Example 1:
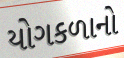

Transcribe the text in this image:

યોગકળાનો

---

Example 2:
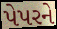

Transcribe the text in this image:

પેપરને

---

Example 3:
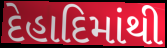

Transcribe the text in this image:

દેહાદિમાંથી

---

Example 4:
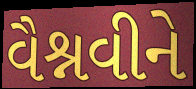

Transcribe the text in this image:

વૈશ્નવીને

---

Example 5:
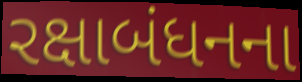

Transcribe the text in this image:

રક્ષાબંધનના